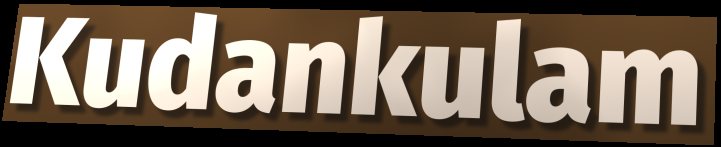
Kudankulam